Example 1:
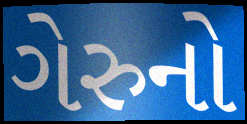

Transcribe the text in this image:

ગેરુનો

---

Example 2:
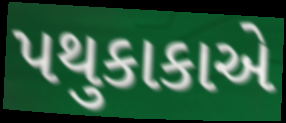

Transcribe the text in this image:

પથુકાકાએ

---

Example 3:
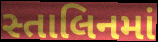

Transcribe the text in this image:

સ્તાલિનમાં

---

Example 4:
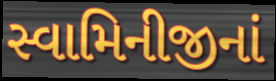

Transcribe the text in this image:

સ્વામિનીજીનાં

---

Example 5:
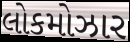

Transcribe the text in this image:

લોકમોઝાર